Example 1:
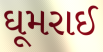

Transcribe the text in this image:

ઘૂમરાઈ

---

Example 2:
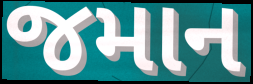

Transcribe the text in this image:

જમાન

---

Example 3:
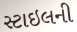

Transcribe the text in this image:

સ્ટાઇલની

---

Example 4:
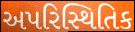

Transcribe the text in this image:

અપરિસ્થિતિક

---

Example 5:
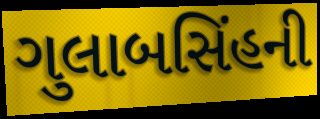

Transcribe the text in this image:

ગુલાબસિંહની